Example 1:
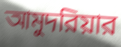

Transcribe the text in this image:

আমুদরিয়ার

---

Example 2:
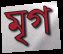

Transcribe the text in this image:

মৃগ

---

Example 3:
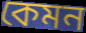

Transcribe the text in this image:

কেমন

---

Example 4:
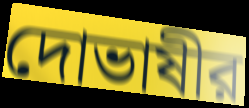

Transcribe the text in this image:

দোভাষীর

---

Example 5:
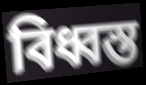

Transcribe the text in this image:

বিধ্বস্ত